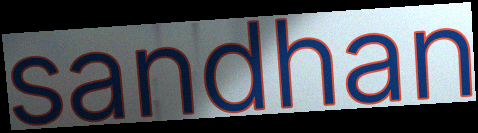
sandhan